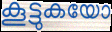
കൂട്ടുകയോ